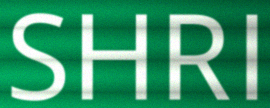
SHRI